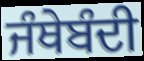
ਜੰਥੇਬੰਦੀ